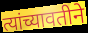
त्यांच्यावतीने